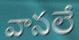
వానలే